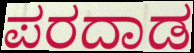
ಪರದಾಡ